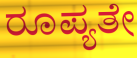
ರೂಪ್ಯತೇ